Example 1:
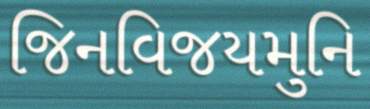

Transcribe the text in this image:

જિનવિજયમુનિ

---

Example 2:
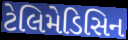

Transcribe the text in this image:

ટેલિમેડિસિન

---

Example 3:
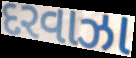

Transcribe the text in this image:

દરવાઝા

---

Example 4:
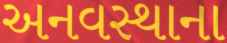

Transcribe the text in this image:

અનવસ્થાના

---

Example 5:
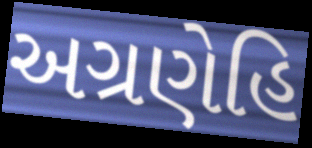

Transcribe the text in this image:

અગ્રણેહિ